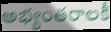
అభ్యంతరాలకీ